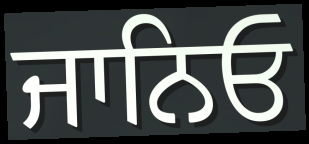
ਜਾਨਿਓ